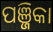
ପଞ୍ଜିକା